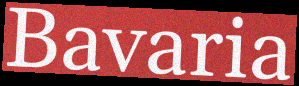
Bavaria